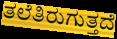
ತಲೆತಿರುಗುತ್ತದೆ